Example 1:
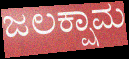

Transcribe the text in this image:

ಜಲಕ್ಷಾಮ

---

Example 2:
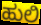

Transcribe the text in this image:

ಹುಲಿ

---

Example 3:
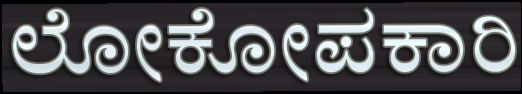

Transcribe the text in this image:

ಲೋಕೋಪಕಾರಿ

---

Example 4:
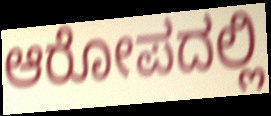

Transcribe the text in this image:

ಆರೋಪದಲ್ಲಿ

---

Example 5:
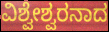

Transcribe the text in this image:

ವಿಶ್ವೇಶ್ವರನಾದ